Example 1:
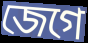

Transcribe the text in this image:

জেগে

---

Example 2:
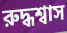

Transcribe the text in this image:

রুদ্ধশ্বাস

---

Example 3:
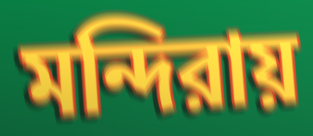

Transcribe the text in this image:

মন্দিরায়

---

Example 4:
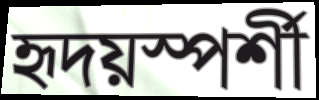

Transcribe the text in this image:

হৃদয়স্পর্শী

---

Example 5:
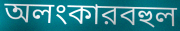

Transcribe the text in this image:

অলংকারবহুল